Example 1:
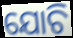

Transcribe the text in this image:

ଯୋଚି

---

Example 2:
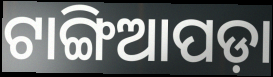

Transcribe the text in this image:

ଟାଙ୍ଗିଆପଡ଼ା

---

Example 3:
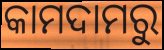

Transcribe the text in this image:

କାମଦାମରୁ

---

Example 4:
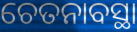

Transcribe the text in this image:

ଚେତନାବସ୍ଥା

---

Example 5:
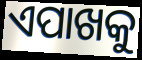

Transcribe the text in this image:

ଏପାଖକୁ